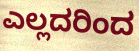
ಎಲ್ಲದರಿಂದ